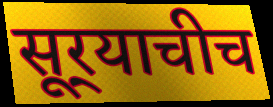
सूर्याचीच